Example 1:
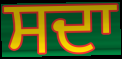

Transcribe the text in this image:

ਸਦਾ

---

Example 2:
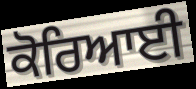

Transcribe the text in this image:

ਕੋਰਿਆਈ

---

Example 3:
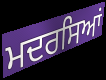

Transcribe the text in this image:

ਮਦਰਸਿਆਂ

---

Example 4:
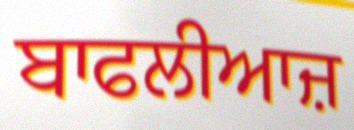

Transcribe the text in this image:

ਬਾਫਲੀਆਜ਼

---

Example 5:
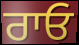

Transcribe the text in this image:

ਰਾਓ